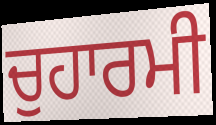
ਚੁਹਾਰਮੀ